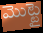
మొట్టై